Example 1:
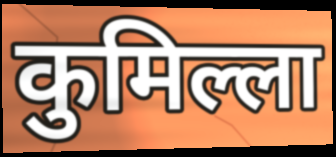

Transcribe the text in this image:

कुमिल्ला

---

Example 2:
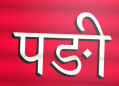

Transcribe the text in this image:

पङी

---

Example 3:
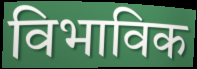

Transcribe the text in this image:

विभाविक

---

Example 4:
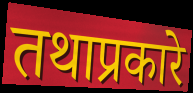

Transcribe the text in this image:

तथाप्रकारे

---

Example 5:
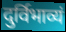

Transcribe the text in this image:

दुर्विभाव्यं